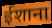
ईशाना